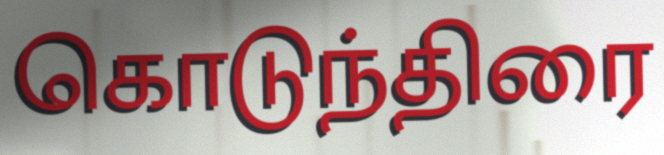
கொடுந்திரை